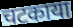
चटकाया